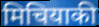
मिचियाकी